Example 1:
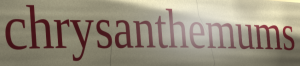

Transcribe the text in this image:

chrysanthemums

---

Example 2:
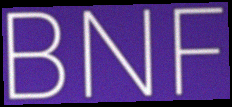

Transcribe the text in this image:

BNF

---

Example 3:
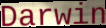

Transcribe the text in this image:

Darwin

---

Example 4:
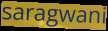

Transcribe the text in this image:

saragwani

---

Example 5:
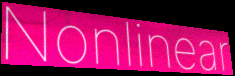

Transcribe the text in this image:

Nonlinear